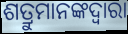
ଶତ୍ରୁମାନଙ୍କଦ୍ଵାରା